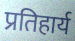
प्रतिहार्य